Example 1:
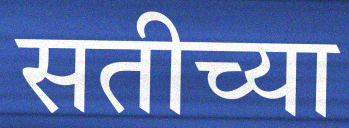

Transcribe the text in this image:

सतीच्या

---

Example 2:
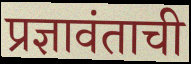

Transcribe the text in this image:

प्रज्ञावंताची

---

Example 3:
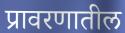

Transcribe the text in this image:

प्रावरणातील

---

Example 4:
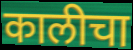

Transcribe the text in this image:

कालीचा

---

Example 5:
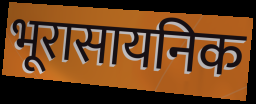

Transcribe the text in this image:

भूरासायनिक